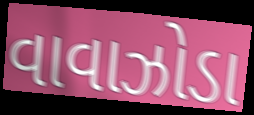
વાવાઝોડા